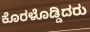
ಕೊರಳೊಡ್ಡಿದರು